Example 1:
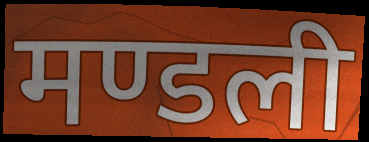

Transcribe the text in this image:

मण्डली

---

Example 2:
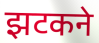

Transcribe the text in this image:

झटकने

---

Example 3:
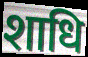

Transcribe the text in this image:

शाधि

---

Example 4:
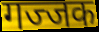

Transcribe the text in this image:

गज्जक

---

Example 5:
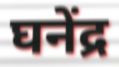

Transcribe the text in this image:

घनेंद्र